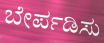
ಬೇರ್ಪಡಿಸು